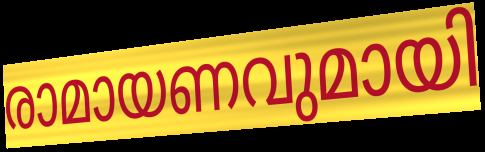
രാമായണവുമായി